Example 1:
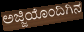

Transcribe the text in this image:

ಅಜ್ಜಿಯೊಂದಿಗಿನ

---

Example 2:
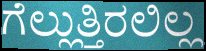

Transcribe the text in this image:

ಗೆಲ್ಲುತ್ತಿರಲಿಲ್ಲ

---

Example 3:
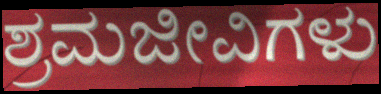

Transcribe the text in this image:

ಶ್ರಮಜೀವಿಗಳು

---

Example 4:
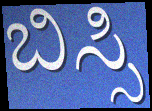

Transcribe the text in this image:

ಬಿಸ್ಸಿ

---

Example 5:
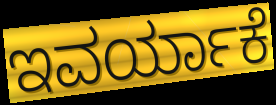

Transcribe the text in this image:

ಇವರ್ಯಾಕೆ